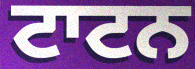
ਟਾਟਨ